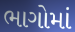
ભાગોમાં